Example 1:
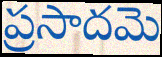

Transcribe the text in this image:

ప్రసాదమె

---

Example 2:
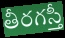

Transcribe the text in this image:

తీరగస్తీ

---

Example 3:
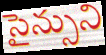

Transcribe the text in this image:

సైన్సుని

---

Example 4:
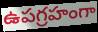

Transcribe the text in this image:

ఉపగ్రహంగా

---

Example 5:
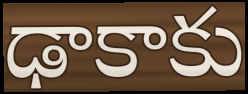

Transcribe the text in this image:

ఢాకాకు